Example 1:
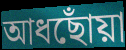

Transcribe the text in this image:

আধছোঁয়া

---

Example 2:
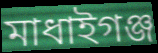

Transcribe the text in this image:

মাধাইগঞ্জ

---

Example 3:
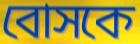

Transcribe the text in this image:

বোসকে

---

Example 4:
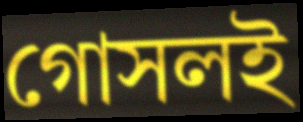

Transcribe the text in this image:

গোসলই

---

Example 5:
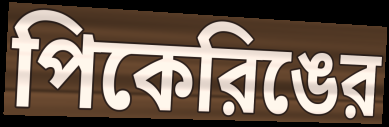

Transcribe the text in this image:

পিকেরিঙের